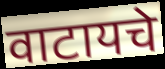
वाटायचे